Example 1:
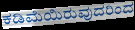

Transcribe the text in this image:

ಕಡಿಮೆಯಿರುವುದರಿಂದ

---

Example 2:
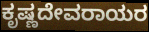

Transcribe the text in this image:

ಕೃಷ್ಣದೇವರಾಯರ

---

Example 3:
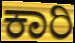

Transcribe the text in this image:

ಕಾರಿ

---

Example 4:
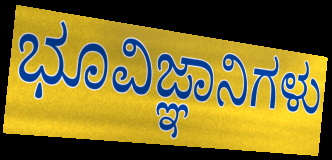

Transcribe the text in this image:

ಭೂವಿಜ್ಞಾನಿಗಳು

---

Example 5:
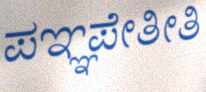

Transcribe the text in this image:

ಪಞ್ಞಪೇತೀತಿ